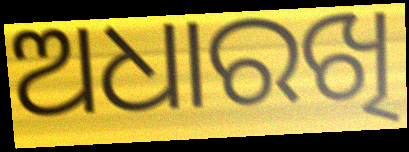
ଅଧାରଖି